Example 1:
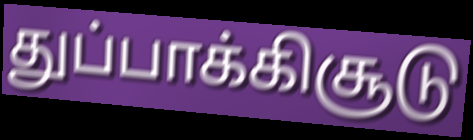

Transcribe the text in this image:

துப்பாக்கிசூடு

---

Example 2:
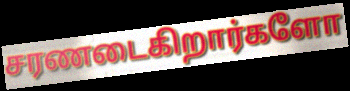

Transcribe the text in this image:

சரணடைகிறார்களோ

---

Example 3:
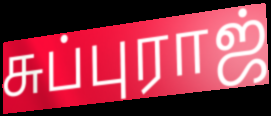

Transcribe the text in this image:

சுப்புராஜ்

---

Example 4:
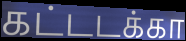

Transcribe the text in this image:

கட்டடக்கா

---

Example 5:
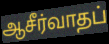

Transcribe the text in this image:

ஆசீர்வாதப்